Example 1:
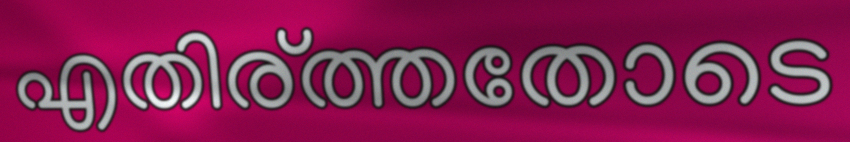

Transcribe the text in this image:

എതിര്ത്തതോടെ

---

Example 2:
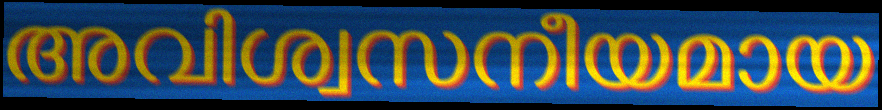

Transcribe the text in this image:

അവിശ്വസനീയമായ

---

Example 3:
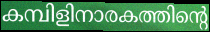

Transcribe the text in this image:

കമ്പിളിനാരകത്തിന്റെ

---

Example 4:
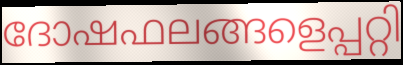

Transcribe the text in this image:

ദോഷഫലങ്ങളെപ്പറ്റി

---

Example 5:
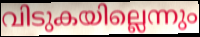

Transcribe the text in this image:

വിടുകയില്ലെന്നും